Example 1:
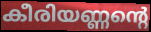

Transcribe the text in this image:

കീരിയണ്ണന്റെ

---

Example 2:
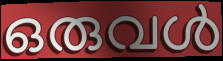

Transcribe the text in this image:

ഒരുവൾ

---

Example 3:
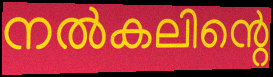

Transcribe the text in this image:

നൽകലിന്റെ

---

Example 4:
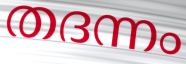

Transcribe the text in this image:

തദന്നം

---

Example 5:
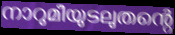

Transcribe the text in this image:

നാറുമീയുടലുതന്റെ